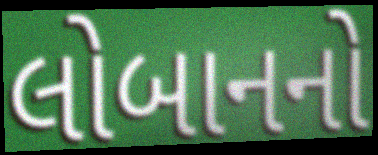
લોબાનનો